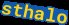
sthalo